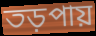
তড়পায়